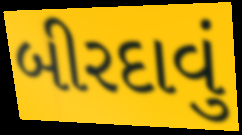
બીરદાવું